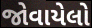
જોવાયેલો